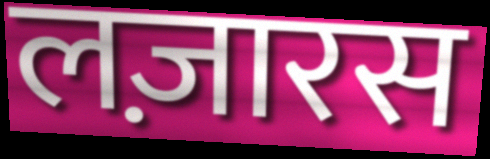
लज़ारस